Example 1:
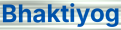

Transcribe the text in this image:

Bhaktiyog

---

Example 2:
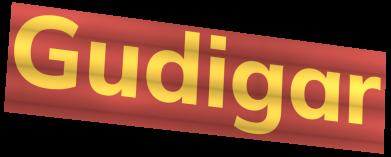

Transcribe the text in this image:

Gudigar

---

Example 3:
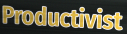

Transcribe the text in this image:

Productivist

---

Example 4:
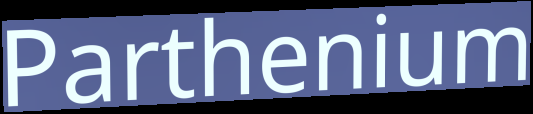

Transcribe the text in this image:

Parthenium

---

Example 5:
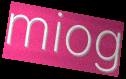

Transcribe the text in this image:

miog